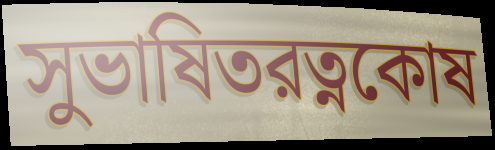
সুভাষিতরত্নকোষ